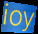
ioy